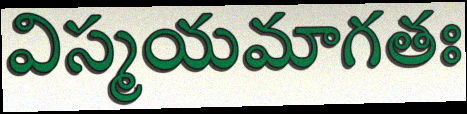
విస్మయమాగతః